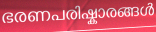
ഭരണപരിഷ്കാരങ്ങൾ